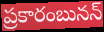
ప్రకారంబునన్